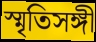
স্মৃতিসঙ্গী